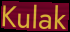
Kulak